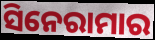
ସିନେରାମାର